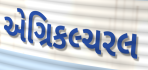
એગ્રિકલ્ચરલ